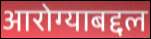
आरोग्याबद्दल